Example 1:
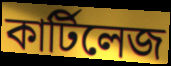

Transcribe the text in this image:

কার্টিলেজ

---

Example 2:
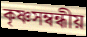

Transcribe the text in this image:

কৃষ্ণসম্বন্ধীয়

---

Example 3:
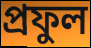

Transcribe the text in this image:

প্রফুল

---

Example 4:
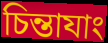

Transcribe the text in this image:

চিন্তাযাং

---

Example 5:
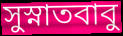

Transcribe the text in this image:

সুস্নাতবাবু